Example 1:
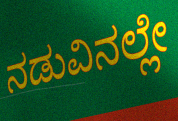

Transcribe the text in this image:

ನಡುವಿನಲ್ಲೇ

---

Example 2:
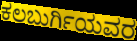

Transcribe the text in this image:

ಕಲಬುರ್ಗಿಯವರ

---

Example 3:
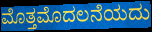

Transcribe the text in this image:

ಮೊತ್ತಮೊದಲನೆಯದು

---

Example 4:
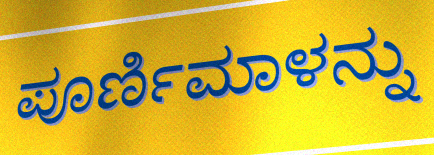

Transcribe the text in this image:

ಪೂರ್ಣಿಮಾಳನ್ನು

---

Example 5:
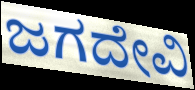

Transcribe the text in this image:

ಜಗದೇವಿ